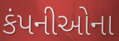
કંપનીઓના